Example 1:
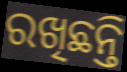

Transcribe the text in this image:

ରଖିଛନ୍ତି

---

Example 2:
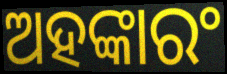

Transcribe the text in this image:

ଅହଙ୍କାରଂ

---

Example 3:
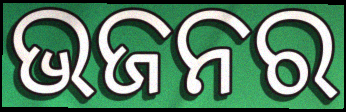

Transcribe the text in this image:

ଭଜନର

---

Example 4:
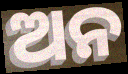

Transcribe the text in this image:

ଅନ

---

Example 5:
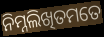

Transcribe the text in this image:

ନିମ୍ନଲିଖିତମତେ